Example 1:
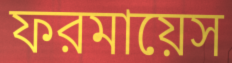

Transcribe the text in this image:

ফরমায়েস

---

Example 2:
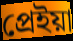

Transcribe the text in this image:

প্রেইয়া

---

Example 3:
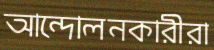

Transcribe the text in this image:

আন্দোলনকারীরা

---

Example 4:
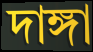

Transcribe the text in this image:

দাঙ্গা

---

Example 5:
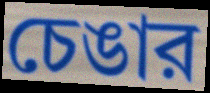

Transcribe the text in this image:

চেঙার